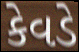
કેવડે